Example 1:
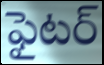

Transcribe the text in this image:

ఫైటర్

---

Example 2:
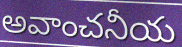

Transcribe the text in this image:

అవాంచనీయ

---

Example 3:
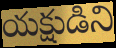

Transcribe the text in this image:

యక్షుడిని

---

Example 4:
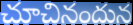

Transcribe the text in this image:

చూచినందున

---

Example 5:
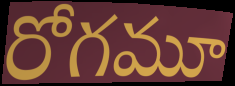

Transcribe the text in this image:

రోగమూ